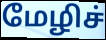
மேழிச்